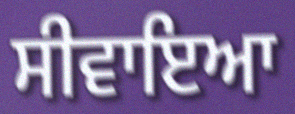
ਸੀਵਾਇਆ